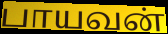
பாயவன்